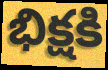
భిక్షకి